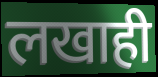
लखाही